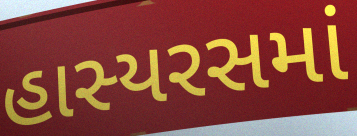
હાસ્યરસમાં